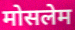
मोसलेम